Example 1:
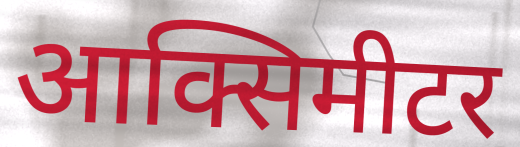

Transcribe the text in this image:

आक्सिमीटर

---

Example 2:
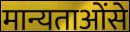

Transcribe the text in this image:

मान्यताओंसे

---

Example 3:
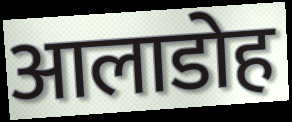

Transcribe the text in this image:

आलाडोह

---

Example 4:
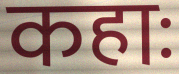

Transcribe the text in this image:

कहाः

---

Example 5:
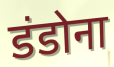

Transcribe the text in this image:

डंडोना